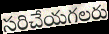
సరిచేయగలరు